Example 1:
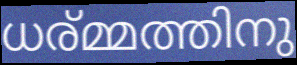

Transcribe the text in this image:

ധര്മ്മത്തിനു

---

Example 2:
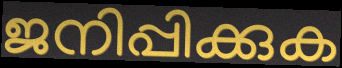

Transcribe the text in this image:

ജനിപ്പിക്കുക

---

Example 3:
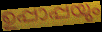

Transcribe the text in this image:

ഉപ്പാപ്പയും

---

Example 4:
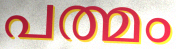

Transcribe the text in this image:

പത്മം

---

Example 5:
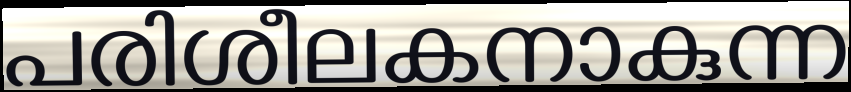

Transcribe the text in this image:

പരിശീലകനാകുന്ന